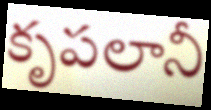
కృపలానీ